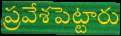
ప్రవేశపెట్టారు